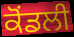
ਕੋਂਡਲੀ